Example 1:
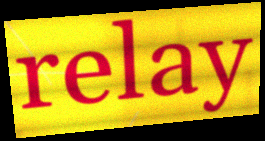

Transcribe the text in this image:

relay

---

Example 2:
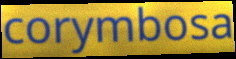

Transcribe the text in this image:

corymbosa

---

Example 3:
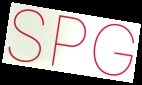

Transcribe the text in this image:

SPG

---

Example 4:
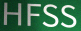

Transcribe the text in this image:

HFSS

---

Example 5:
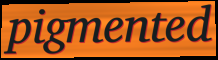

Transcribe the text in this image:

pigmented